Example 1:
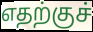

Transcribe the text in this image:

எதற்குச்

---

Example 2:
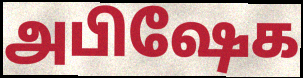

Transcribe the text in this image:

அபிஷேக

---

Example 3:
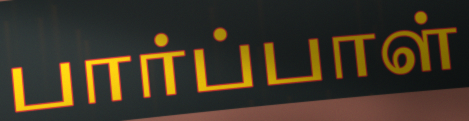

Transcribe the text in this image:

பார்ப்பாள்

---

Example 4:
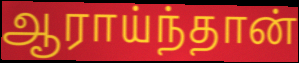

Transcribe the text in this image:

ஆராய்ந்தான்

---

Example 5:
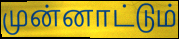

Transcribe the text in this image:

முன்னாட்டும்